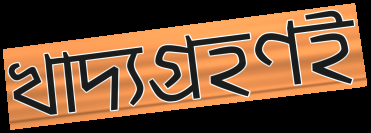
খাদ্যগ্রহণই